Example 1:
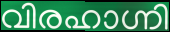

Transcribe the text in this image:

വിരഹാഗ്നി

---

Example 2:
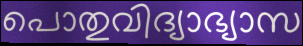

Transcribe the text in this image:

പൊതുവിദ്യാഭ്യാസ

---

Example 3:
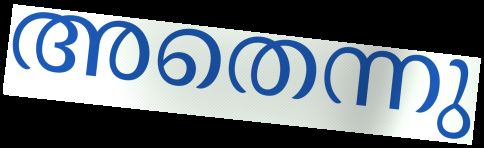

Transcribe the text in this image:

അതെന്നു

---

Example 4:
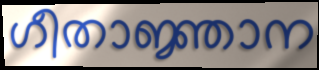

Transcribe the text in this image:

ഗീതാജ്ഞാന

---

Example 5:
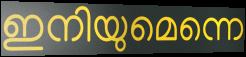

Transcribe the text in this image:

ഇനിയുമെന്നെ